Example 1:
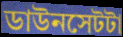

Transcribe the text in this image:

ডাউনসেটটা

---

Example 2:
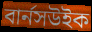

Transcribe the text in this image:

বার্নসউইক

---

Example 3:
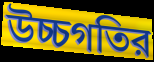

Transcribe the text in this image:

উচ্চগতির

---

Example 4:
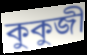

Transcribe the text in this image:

কুকুজী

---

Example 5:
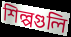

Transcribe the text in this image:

শিল্পগুলি